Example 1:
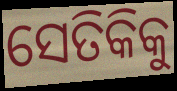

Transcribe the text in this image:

ସେତିକିକୁ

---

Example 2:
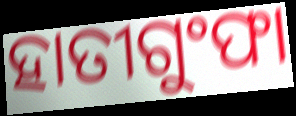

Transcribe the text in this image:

ହାତୀଗୁଂଫା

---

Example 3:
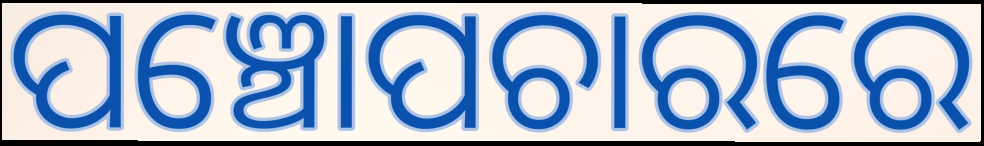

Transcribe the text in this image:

ପଞ୍ଚୋପଚାରରେ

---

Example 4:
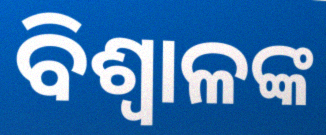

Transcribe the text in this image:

ବିଶ୍ୱାଳଙ୍କ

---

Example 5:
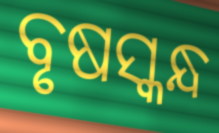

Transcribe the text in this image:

ବୃଷସ୍କନ୍ଧ